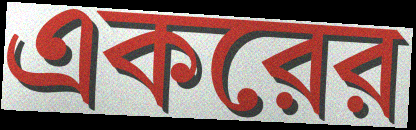
একরের